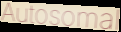
Autosomal